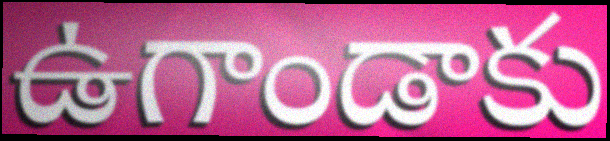
ఉగాండాకు